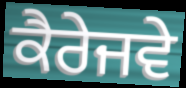
ਕੈਰੇਜਵੇ